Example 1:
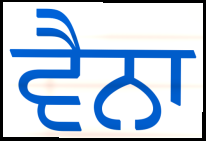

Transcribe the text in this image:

ਵੈਨਾ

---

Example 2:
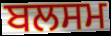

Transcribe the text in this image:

ਬਲਸਮ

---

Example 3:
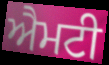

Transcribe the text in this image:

ਐਮਟੀ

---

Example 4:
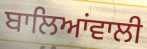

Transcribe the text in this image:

ਬਾਲਿਆਂਵਾਲੀ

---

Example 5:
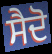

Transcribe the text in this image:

ਸੈਦੋ